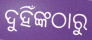
ଦୁହିଁଙ୍କଠାରୁ